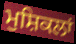
ਮੁਸ਼ਿਕਲਾਂ